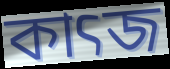
কাৎজ